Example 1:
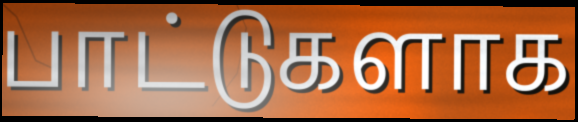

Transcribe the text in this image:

பாட்டுகளாக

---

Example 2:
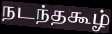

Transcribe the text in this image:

நடந்தகூழ்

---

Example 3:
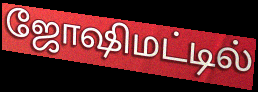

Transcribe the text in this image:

ஜோஷிமட்டில்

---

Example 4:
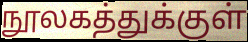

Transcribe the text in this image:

நூலகத்துக்குள்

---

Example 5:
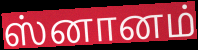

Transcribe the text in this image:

ஸ்னானம்